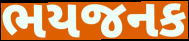
ભયજનક